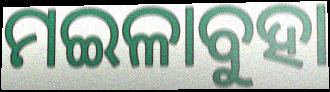
ମଇଳାବୁହା